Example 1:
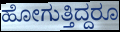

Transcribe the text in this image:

ಹೋಗುತ್ತಿದ್ದರೂ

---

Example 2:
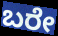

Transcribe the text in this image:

ಬರೇ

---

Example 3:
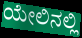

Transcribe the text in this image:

ಯೇಲಿನಲ್ಲಿ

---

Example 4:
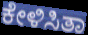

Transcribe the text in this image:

ಕೇಳಿಸಿತಾ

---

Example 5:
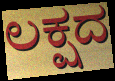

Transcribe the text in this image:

ಲಕ್ಷದ